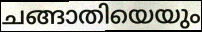
ചങ്ങാതിയെയും